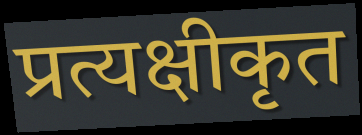
प्रत्यक्षीकृत